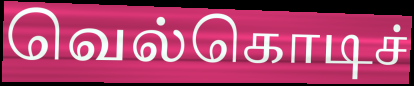
வெல்கொடிச்